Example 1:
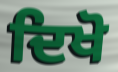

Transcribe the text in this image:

ਦਿਖੋ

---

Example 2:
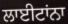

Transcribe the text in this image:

ਲਾਈਟਾਂਨਾ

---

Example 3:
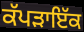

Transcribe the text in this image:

ਕੱਪੜਾਇੱਕ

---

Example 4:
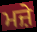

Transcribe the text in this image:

ਮਜ਼ੇ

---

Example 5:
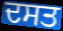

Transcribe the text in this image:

ਦਸਤ